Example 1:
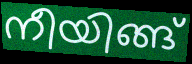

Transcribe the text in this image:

നീയിങ്ങ്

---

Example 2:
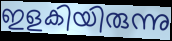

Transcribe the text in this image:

ഇളകിയിരുന്നു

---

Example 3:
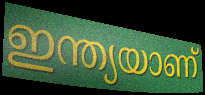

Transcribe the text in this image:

ഇന്ത്യയാണ്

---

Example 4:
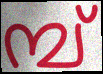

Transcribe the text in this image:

മ്പ്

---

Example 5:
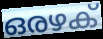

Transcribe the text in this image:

ഒരഴക്